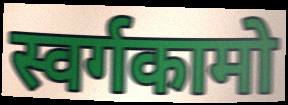
स्वर्गकामो